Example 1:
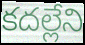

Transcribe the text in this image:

కదల్లేని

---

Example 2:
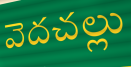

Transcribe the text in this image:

వెదచల్లు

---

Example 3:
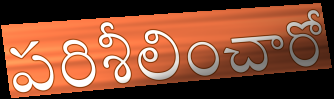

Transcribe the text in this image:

పరిశీలించారో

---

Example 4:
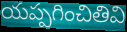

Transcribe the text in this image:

యప్పగించితివి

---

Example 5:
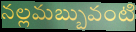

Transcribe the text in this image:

నల్లమబ్బువంటి